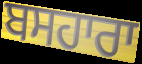
ਬਸਹਾਰਾ